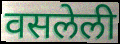
वसलेली